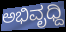
ಅಭಿವೃಧ್ದಿ